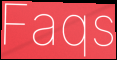
Faqs